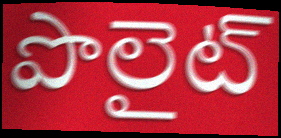
పొలైట్